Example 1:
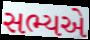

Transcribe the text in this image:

સભ્યએ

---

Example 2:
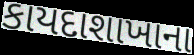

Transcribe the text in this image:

કાયદાશાખાના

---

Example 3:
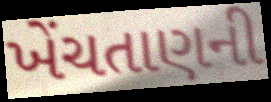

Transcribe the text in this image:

ખેંચતાણની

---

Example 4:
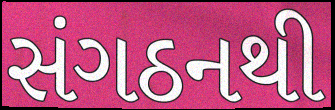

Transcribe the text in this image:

સંગઠનથી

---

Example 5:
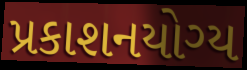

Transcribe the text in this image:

પ્રકાશનયોગ્ય